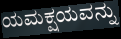
ಯಮಕ್ಷಯವನ್ನು